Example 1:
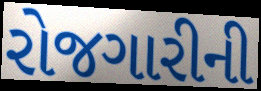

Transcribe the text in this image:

રોજગારીની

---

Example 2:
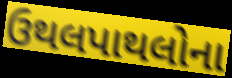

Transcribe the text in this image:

ઉથલપાથલોના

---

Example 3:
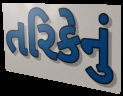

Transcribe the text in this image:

તરિકેનું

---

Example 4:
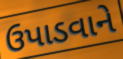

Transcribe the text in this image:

ઉપાડવાને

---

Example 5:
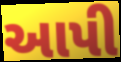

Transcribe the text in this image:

આપી